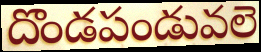
దొండపండువలె